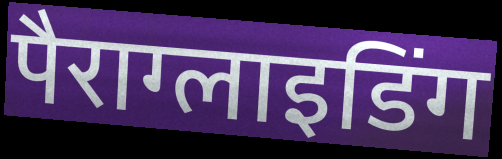
पैराग्लाइडिंग